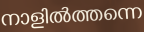
നാളിൽത്തന്നെ